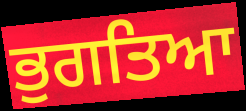
ਭੁਗਤਿਆ